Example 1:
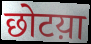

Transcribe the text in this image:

छोटय़ा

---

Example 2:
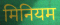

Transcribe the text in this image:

मिनियम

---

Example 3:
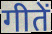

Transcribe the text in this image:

गीतें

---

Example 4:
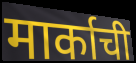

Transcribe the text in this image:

मार्काची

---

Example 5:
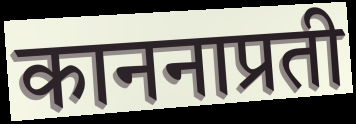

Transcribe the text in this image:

काननाप्रती